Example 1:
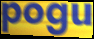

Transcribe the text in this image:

pogu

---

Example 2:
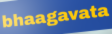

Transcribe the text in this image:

bhaagavata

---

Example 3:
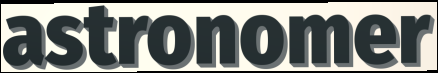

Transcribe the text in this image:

astronomer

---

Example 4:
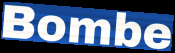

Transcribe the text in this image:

Bombe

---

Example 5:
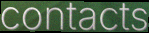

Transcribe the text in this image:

contacts